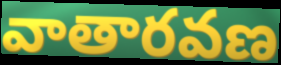
వాతారవణ